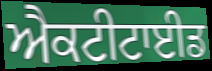
ਐਕਟੀਟਾਈਡ